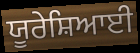
ਯੂਰੇਸ਼ਿਆਈ